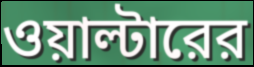
ওয়াল্টারের